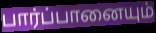
பார்ப்பானையும்